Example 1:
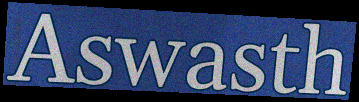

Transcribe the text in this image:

Aswasth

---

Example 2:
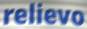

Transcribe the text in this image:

relievo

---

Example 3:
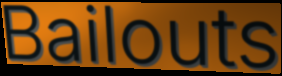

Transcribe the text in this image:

Bailouts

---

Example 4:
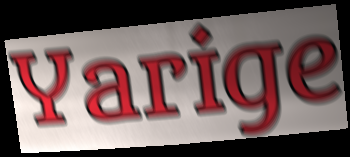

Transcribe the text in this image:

Yarige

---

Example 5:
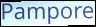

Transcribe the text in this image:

Pampore